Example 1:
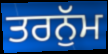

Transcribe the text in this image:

ਤਰਨੁੱਮ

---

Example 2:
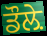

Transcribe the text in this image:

ਡੌਲ਼ੇ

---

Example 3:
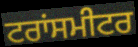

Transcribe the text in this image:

ਟਰਾਂਸਮੀਟਰ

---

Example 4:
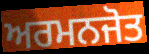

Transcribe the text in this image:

ਅਰਮਨਜੋਤ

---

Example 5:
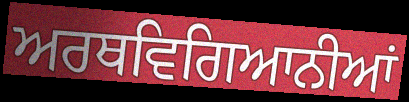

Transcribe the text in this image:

ਅਰਥਵਿਗਿਆਨੀਆਂ